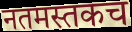
नतमस्तकच